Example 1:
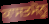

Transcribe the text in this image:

ਕਾਸਤਮੋਨੂ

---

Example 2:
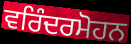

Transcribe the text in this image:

ਵਰਿੰਦਰਮੋਹਨ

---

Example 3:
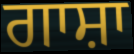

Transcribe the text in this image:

ਗਾਸ਼ਾ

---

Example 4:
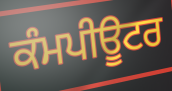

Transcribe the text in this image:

ਕੰਮਪੀਊਟਰ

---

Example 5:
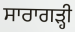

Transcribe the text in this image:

ਸਾਰਾਗੜ੍ਹੀ